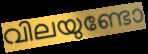
വിലയുണ്ടോ